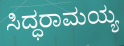
ಸಿದ್ಧರಾಮಯ್ಯ